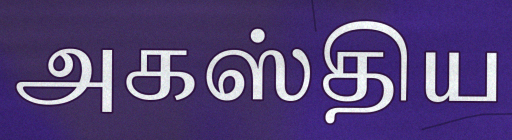
அகஸ்திய